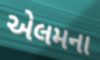
એલમના